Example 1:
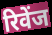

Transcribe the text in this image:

रिवेंज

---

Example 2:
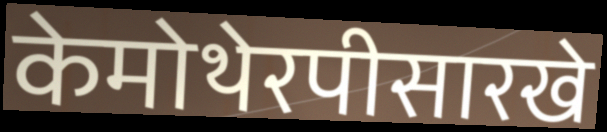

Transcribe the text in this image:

केमोथेरपीसारखे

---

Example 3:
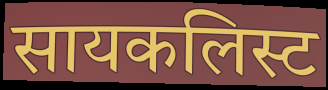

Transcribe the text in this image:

सायकलिस्ट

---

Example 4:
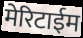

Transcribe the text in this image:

मेरिटाईम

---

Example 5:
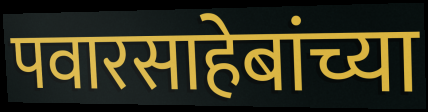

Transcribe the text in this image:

पवारसाहेबांच्या